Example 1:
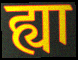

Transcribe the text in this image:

ह्या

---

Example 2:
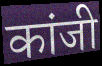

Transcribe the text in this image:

कांजी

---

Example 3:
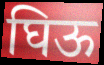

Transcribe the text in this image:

घिऊ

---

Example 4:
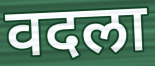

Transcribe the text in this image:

वदला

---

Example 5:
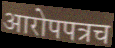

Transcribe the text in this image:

आरोपपत्रच